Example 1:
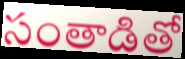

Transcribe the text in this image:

సంతాడితో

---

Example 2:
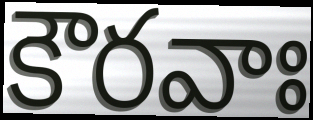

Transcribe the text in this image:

కౌరవాః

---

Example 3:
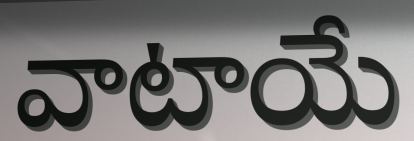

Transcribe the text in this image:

వాటాయే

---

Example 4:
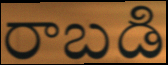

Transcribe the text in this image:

రాబడి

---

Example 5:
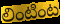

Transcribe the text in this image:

లింటింట